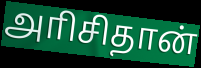
அரிசிதான்